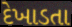
દેખાડતા